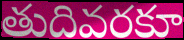
తుదివరకూ